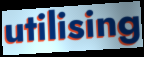
utilising